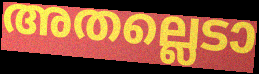
അതല്ലെടാ